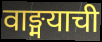
वाङ्मयाची